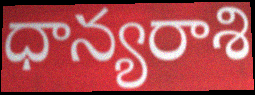
ధాన్యరాశి